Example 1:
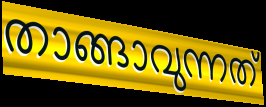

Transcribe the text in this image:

താങ്ങാവുന്നത്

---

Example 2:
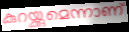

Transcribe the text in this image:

കുറയ്ക്കുമെന്നാണ്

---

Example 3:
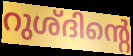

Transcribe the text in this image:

റുശ്ദിന്റെ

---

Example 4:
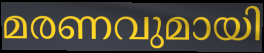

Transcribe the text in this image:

മരണവുമായി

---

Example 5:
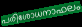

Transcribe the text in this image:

പരിശോധനാഫലം